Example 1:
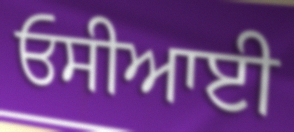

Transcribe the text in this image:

ਓਸੀਆਈ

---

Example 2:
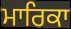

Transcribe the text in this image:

ਮਾਰਿਕਾ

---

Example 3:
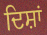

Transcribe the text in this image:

ਦਿਸ਼ਾਂ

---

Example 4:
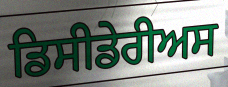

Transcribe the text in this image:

ਡਿਸੀਡੇਰੀਅਸ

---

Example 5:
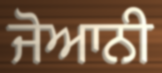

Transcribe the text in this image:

ਜੋਆਨੀ